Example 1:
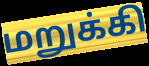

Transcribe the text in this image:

மறுக்கி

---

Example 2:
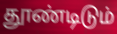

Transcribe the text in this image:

தூண்டிடும்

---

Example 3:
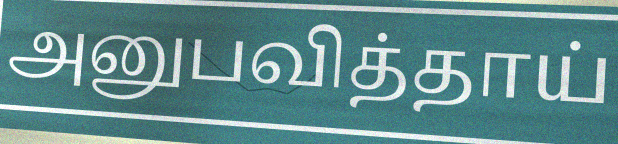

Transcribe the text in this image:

அனுபவித்தாய்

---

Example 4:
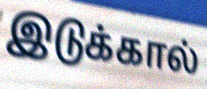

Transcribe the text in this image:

இடுக்கால்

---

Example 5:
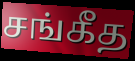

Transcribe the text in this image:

சங்கீத